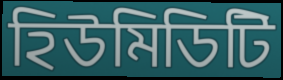
হিউমিডিটি